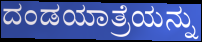
ದಂಡಯಾತ್ರೆಯನ್ನು